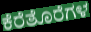
ಕೆರೆತೊರೆಗಳ